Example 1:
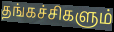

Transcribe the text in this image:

தங்கச்சிகளும்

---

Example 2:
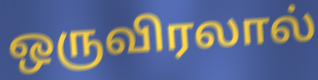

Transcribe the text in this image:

ஒருவிரலால்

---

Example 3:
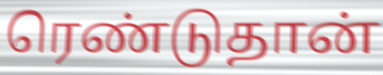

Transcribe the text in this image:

ரெண்டுதான்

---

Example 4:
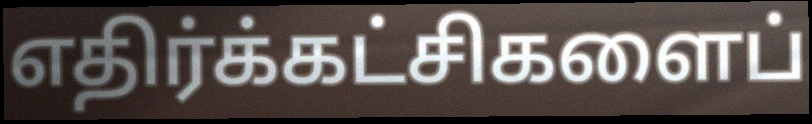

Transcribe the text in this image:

எதிர்க்கட்சிகளைப்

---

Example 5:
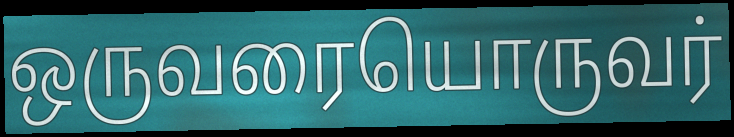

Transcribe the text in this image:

ஒருவரையொருவர்